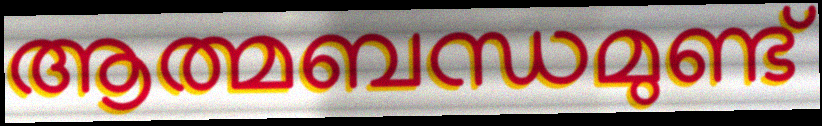
ആത്മബന്ധമുണ്ട്